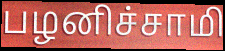
பழனிச்சாமி